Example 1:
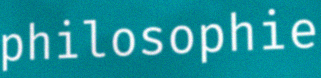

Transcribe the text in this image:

philosophie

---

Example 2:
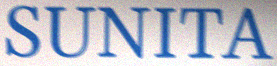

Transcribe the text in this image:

SUNITA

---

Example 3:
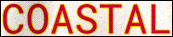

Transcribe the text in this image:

COASTAL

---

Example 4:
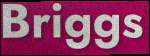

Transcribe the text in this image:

Briggs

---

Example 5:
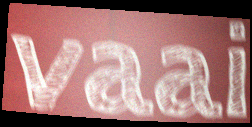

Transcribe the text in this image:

vaai